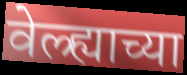
वेल्ह्याच्या